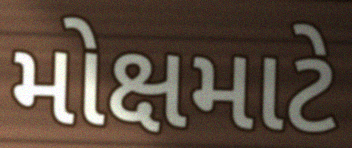
મોક્ષમાટે